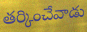
తర్కించేవాడు